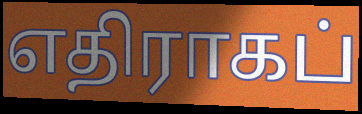
எதிராகப்